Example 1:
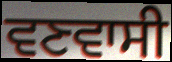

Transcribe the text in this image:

ਵਣਵਾਸੀ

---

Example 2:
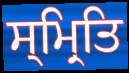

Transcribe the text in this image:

ਸ੍ਮ੍ਰਿਤਿ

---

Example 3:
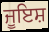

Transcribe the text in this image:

ਜੂਇਸ਼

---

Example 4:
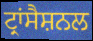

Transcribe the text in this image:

ਟ੍ਰਾਂਸੈਸ਼ਨਲ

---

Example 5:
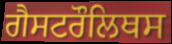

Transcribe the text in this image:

ਗੈਸਟਰੌਲਿਥਸ